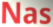
Nas